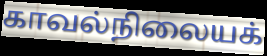
காவல்நிலையக்